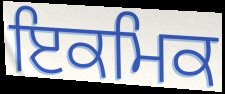
ਇਕਮਿਕ